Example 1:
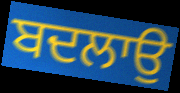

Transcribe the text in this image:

ਬਦਲਾਉ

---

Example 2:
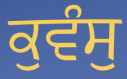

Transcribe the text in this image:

ਕੁਵੰਸੁ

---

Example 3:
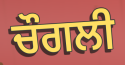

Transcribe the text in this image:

ਚੌਗਲੀ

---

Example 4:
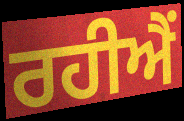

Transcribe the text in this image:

ਰਹੀਐਂ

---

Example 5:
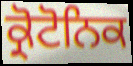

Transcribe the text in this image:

ਕ੍ਰੋਟੋਨਿਕ